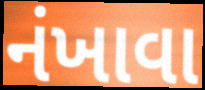
નંખાવા